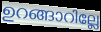
ഉറങ്ങാറില്ലേ